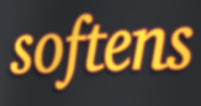
softens